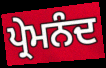
ਪ੍ਰੇਮਨੰਦ